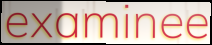
examinee